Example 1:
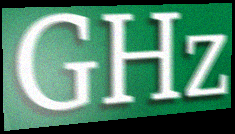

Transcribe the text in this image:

GHz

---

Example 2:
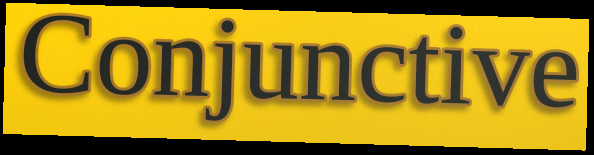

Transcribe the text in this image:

Conjunctive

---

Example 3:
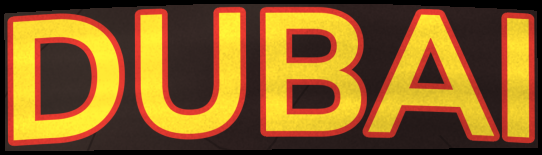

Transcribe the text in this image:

DUBAI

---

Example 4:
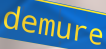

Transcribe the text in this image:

demure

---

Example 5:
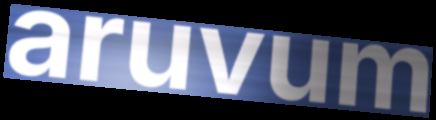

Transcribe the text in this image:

aruvum